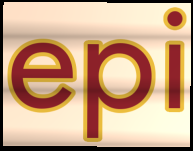
epi